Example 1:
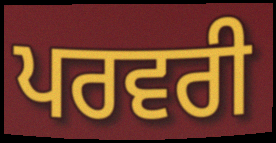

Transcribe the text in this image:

ਪਰਵਰੀ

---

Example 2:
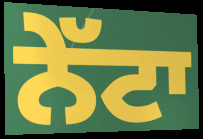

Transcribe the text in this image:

ਨੇੱਟਾ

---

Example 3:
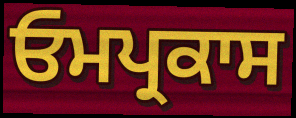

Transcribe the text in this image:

ਓਮਪ੍ਰਕਾਸ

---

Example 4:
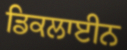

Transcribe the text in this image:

ਡਿਕਲਾਈਨ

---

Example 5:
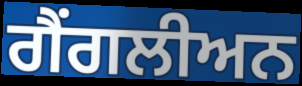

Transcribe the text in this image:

ਗੈਂਗਲੀਅਨ